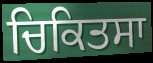
ਚਿਕਿਤਸਾ